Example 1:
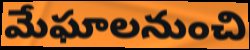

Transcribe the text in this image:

మేఘాలనుంచి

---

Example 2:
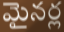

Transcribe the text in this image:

మైనర్ల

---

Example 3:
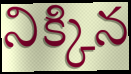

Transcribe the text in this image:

నిక్కిన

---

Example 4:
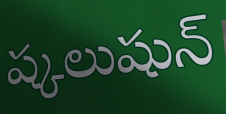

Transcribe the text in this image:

ష్కలుషున్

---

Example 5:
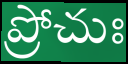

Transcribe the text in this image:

ప్రోచుః